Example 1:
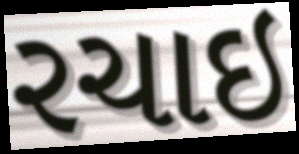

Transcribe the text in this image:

રચાઇ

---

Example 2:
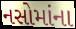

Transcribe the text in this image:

નસોમાંના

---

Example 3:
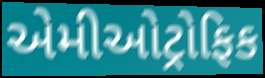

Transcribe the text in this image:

એમીઓટ્રોફિક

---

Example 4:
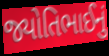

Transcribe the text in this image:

જ્યોતિભાઈનું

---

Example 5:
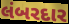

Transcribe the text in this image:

લંબરદાર